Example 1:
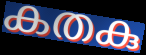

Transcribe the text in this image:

കതകു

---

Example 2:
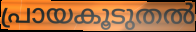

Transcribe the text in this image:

പ്രായകൂടുതൽ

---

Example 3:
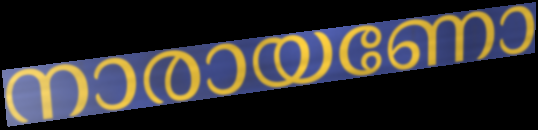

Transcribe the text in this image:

നാരായണോ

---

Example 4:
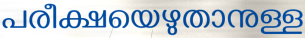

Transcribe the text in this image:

പരീക്ഷയെഴുതാനുള്ള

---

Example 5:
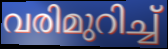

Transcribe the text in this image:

വരിമുറിച്ച്